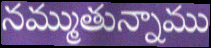
నమ్ముతున్నాము